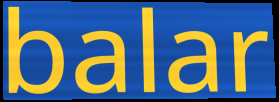
balar